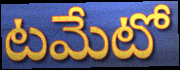
టమేటో